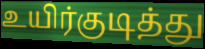
உயிர்குடித்து